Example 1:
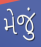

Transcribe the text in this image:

મેજું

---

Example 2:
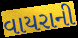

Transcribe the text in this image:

વાયરાની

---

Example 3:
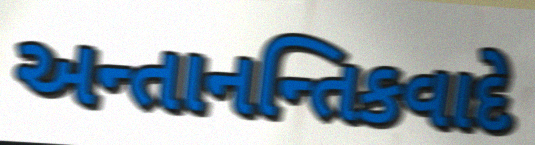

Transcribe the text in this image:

અન્તાનન્તિકવાદે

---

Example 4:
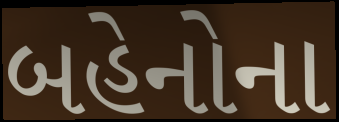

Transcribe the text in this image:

બહેનોના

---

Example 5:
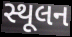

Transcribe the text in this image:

સ્થૂલન